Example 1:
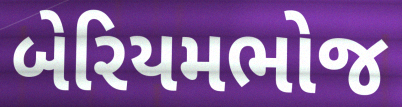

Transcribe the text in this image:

બેરિયમભોજ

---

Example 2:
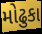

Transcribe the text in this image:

મોઢુકા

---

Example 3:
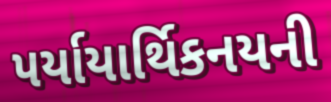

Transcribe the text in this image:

પર્યાયાર્થિકનયની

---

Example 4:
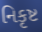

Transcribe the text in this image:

નિકૃષ્ટ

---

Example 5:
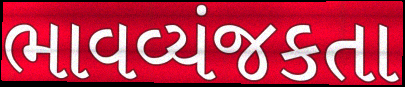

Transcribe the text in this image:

ભાવવ્યંજકતા